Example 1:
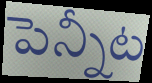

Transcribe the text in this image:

పెన్నీట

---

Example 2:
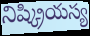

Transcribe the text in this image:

నిష్క్రియస్య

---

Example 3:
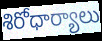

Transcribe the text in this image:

శిరోధార్యాలు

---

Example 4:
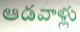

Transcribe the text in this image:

ఆడవాళ్లు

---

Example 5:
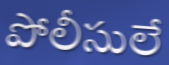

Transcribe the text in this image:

పోలీసులే